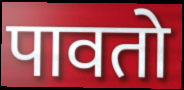
पावतो